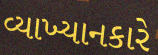
વ્યાખ્યાનકારે